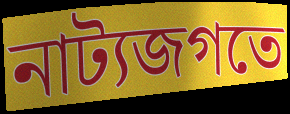
নাট্যজগতে